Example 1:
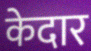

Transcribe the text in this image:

केदार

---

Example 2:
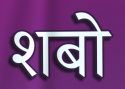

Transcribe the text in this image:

शबो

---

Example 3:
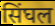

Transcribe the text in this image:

सिंघल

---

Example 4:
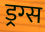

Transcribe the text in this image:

ड्रग्‍स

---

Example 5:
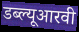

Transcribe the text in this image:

डब्ल्यूआरवी